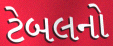
ટેબલનો